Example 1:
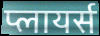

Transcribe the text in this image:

प्लायर्स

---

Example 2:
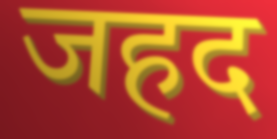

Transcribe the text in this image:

जहद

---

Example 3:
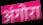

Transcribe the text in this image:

अंगोरा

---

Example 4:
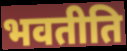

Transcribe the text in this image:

भवतीति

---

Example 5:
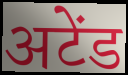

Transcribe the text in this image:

अटेंड